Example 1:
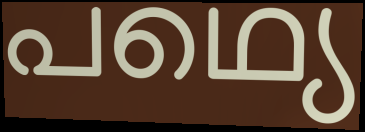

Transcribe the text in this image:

പഥ്യെ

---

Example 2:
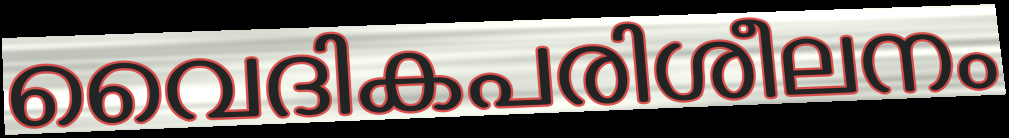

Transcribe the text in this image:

വൈദികപരിശീലനം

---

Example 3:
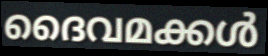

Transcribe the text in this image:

ദൈവമക്കൾ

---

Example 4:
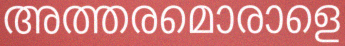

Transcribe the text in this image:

അത്തരമൊരാളെ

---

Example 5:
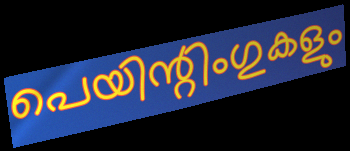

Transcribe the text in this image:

പെയിന്റിംഗുകളും